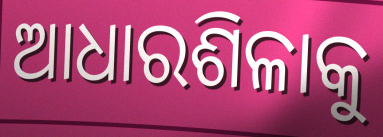
ଆଧାରଶିଳାକୁ